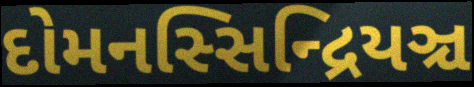
દોમનસ્સિન્દ્રિયઞ્ચ